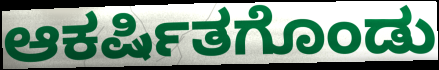
ಆಕರ್ಷಿತಗೊಂಡು